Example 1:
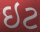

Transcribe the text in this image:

ઇટ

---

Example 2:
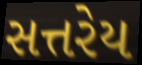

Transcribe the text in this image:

સત્તરેય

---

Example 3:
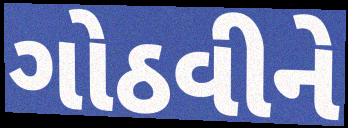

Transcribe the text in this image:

ગોઠવીને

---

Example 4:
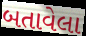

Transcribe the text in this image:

બતાવેલા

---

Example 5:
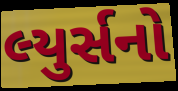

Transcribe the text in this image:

લ્યુર્સનો